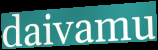
daivamu